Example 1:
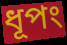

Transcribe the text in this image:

ধূপং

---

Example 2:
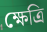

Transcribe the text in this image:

ক্ষেত্রি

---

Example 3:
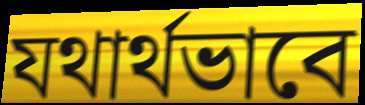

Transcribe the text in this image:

যথার্থভাবে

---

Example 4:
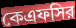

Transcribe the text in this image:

কেএফসির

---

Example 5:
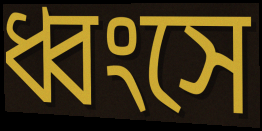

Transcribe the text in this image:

ধ্বংসে